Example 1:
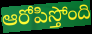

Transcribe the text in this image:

ఆరోపిస్తోంది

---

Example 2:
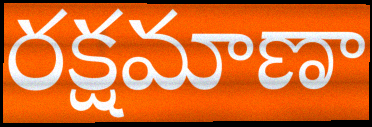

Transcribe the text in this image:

రక్షమాణా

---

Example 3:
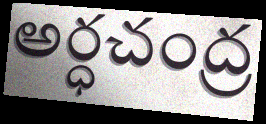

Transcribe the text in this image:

అర్ధచంద్ర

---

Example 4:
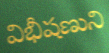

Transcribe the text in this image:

విభీషణుని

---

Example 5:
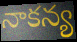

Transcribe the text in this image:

నాకన్య